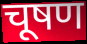
चूषण